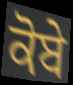
ਕੋਬੇ